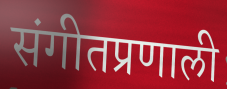
संगीतप्रणाली